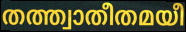
തത്ത്വാതീതമയീ